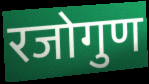
रजोगुण